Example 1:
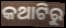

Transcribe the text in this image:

କଥାଟିରୁ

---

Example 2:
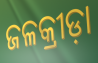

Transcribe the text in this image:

ଜଳକ୍ରୀଡ଼ା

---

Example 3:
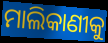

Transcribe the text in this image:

ମାଲିକାଣୀକୁ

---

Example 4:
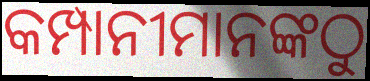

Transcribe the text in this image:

କମ୍ପାନୀମାନଙ୍କଠୁ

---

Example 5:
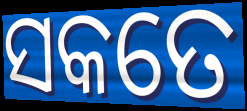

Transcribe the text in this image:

ସକତେ